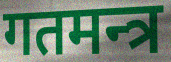
गतमन्त्र